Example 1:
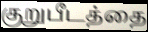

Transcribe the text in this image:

குறுபீடத்தை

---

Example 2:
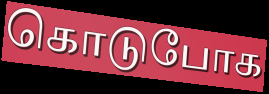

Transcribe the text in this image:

கொடுபோக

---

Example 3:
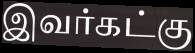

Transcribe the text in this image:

இவர்கட்கு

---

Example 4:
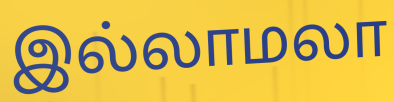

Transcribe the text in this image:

இல்லாமலா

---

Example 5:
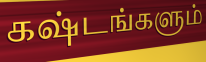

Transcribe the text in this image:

கஷ்டங்களும்